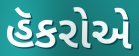
હૅકરોએ